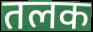
तलक